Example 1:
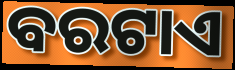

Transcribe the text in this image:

ବରଟାଏ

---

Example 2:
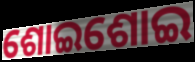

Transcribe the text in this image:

ଶୋଇଶୋଇ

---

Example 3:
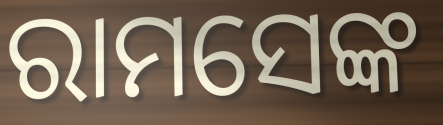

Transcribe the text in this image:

ରାମସେଙ୍କ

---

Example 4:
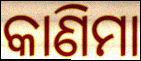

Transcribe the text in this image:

କାଣିମା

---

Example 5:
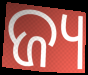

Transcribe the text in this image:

ଜ୍ୟ